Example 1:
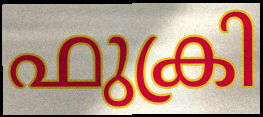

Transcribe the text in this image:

ഫുക്രി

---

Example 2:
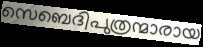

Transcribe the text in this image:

സെബെദിപുത്രന്മാരായ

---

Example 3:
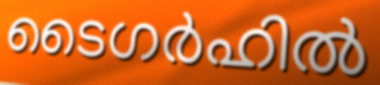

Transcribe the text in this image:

ടൈഗർഹിൽ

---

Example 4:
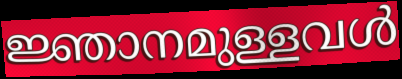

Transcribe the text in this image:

ജ്ഞാനമുള്ളവൾ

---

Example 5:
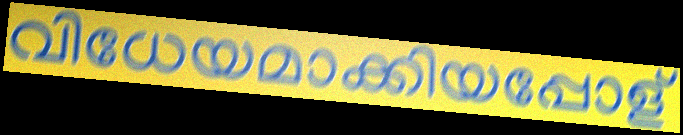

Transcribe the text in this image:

വിധേയമാക്കിയപ്പോള്